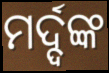
ମର୍ଦ୍ଦଙ୍କ